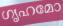
ഗൃഹമോ